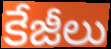
కేజీలు